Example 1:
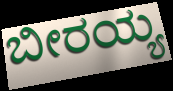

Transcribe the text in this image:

ಬೀರಯ್ಯ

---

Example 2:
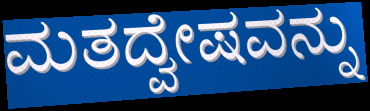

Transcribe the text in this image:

ಮತದ್ವೇಷವನ್ನು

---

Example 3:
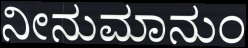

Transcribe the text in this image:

ನೀನುಮಾನುಂ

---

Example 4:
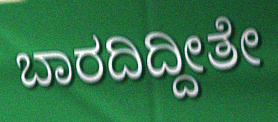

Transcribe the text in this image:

ಬಾರದಿದ್ದೀತೇ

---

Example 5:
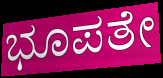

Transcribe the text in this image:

ಭೂಪತೇ